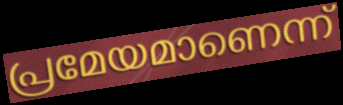
പ്രമേയമാണെന്ന്